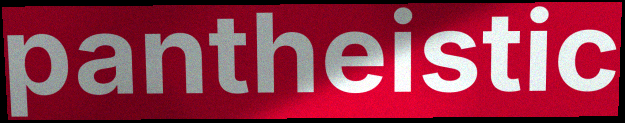
pantheistic